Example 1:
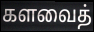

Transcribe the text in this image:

களவைத்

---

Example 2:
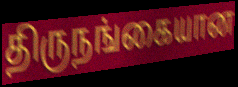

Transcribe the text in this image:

திருநங்கையான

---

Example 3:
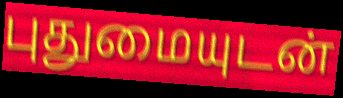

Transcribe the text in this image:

புதுமையுடன்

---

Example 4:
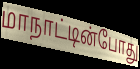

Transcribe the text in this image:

மாநாட்டின்போது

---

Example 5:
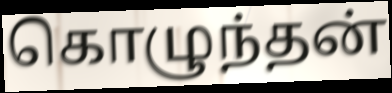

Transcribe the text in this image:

கொழுந்தன்